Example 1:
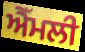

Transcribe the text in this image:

ਐੱਮਲੀ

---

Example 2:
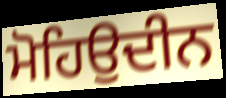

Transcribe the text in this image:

ਮੋਹਿਉਦੀਨ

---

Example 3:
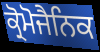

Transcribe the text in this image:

ਕ੍ਰੋਮੋਜੈਨਿਕ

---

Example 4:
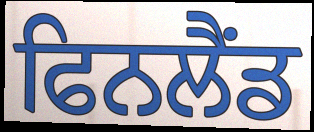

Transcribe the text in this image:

ਫਿਨਲੈਂਡ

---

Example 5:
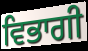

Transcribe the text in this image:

ਵਿਭਾਗੀ